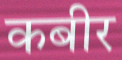
कबीर